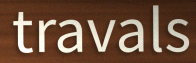
travals